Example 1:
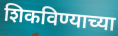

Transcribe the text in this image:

शिकविण्याच्या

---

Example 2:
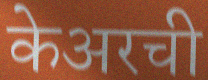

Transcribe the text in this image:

केअरची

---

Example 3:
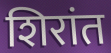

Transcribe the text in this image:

शिरांत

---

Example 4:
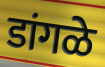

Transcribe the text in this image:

डांगळे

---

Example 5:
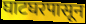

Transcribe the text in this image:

घाटघरपासून